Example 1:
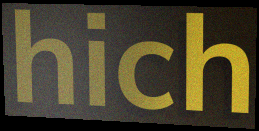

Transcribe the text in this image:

hich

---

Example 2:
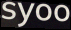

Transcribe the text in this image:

syoo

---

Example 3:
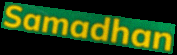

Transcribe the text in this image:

Samadhan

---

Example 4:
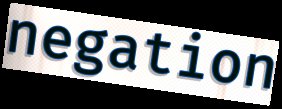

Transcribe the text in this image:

negation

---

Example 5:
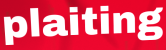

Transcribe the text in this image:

plaiting